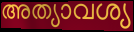
അത്യാവശ്യ